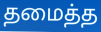
தமைத்த